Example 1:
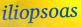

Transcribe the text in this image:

iliopsoas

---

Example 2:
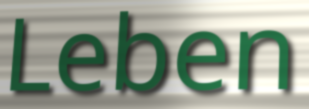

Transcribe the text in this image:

Leben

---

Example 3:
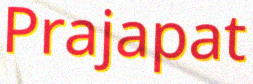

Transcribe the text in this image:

Prajapat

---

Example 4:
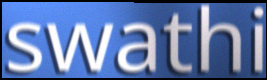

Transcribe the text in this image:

swathi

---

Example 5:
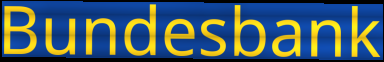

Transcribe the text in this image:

Bundesbank